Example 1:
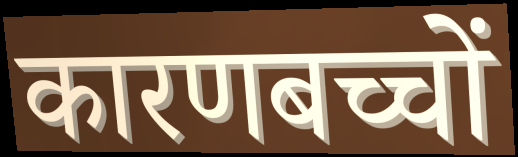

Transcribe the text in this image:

कारणबच्चों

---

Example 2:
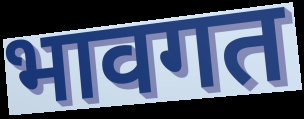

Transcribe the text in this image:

भावगत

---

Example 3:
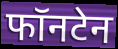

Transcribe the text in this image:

फॉनटेन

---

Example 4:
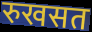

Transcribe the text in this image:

रुखसत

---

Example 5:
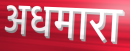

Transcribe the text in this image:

अधमारा